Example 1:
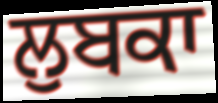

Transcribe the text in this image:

ਲੁਬਕਾ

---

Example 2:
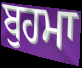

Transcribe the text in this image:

ਬੁਹਮਾ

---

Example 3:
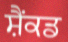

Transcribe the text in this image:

ਸ਼ੈਂਕਡ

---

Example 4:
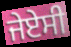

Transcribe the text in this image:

ਜੇਏਸੀ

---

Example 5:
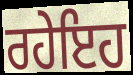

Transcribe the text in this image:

ਰਹੇਇਹ